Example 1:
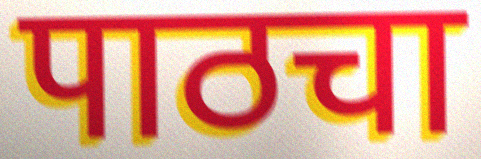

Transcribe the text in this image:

पाठचा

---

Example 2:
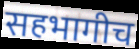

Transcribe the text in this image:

सहभागीच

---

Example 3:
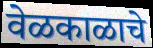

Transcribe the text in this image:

वेळकाळाचे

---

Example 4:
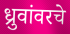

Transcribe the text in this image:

ध्रुवांवरचे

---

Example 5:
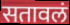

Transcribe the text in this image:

सतावलं